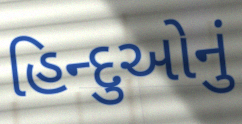
હિન્દુઓનું